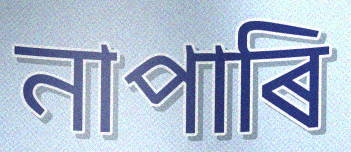
নাপাৰি